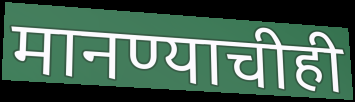
मानण्याचीही